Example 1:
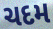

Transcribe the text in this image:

ચદમ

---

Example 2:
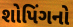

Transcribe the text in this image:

શોપિંગનો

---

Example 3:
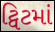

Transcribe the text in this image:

ટ્વિટમાં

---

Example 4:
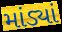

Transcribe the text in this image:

માંડ્યાં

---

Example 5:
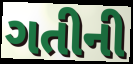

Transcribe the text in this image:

ગતીની